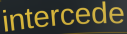
intercede